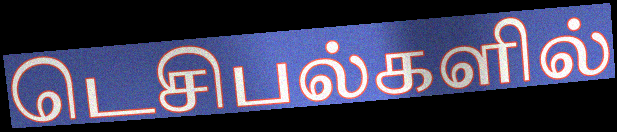
டெசிபல்களில்